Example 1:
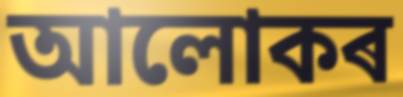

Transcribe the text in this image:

আলোকৰ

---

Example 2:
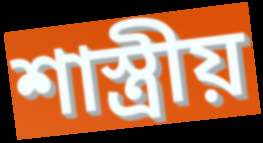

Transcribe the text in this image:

শাস্ত্ৰীয়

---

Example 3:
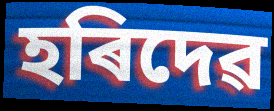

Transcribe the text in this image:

হৰিদেৱ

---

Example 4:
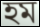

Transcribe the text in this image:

হম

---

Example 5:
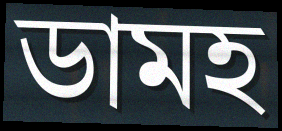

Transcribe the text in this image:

ডামহ